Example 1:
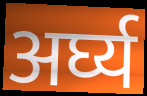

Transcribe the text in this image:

अर्घ्य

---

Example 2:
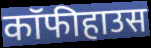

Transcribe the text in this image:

कॉफीहाउस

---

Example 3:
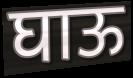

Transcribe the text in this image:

घाऊ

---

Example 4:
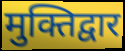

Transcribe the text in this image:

मुक्तिद्वार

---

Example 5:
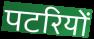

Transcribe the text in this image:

पटरियों